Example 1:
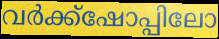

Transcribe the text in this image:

വർക്ക്ഷോപ്പിലോ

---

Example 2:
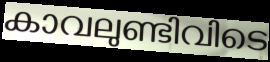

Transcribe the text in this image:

കാവലുണ്ടിവിടെ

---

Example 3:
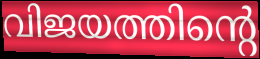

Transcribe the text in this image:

വിജയത്തിന്റെ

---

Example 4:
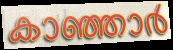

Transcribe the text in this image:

കാഞ്ഞാർ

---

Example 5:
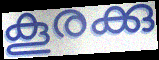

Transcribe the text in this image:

കൂരക്കു